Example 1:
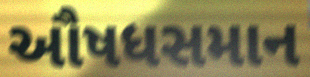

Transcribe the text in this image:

ઔષધસમાન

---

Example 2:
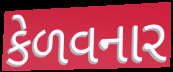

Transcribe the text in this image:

કેળવનાર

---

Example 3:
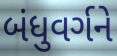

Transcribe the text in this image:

બંધુવર્ગને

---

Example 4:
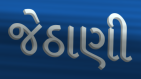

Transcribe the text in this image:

જેઠાણી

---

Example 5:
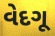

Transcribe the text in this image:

વેદગૂ